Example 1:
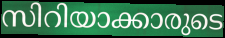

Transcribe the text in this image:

സിറിയാക്കാരുടെ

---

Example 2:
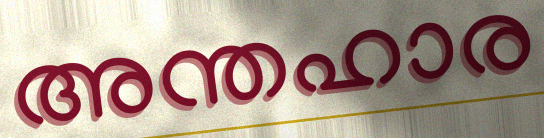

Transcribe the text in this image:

അന്തഹാര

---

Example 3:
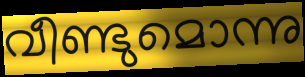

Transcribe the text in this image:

വീണ്ടുമൊന്നു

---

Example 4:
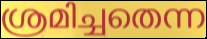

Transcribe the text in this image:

ശ്രമിച്ചതെന്ന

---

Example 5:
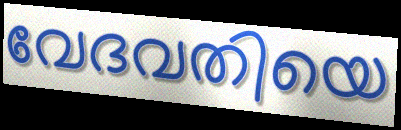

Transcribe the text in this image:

വേദവതിയെ